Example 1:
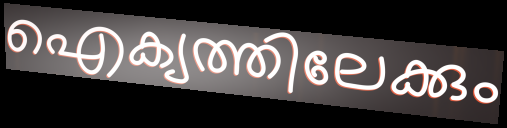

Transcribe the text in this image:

ഐക്യത്തിലേക്കും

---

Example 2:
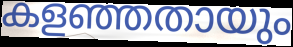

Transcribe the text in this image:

കളഞ്ഞതായും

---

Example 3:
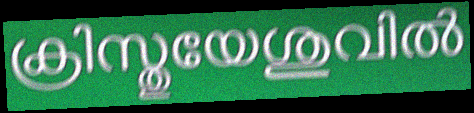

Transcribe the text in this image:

ക്രിസ്തുയേശുവിൽ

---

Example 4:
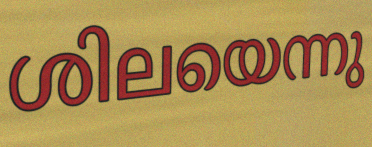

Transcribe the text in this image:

ശിലയെന്നു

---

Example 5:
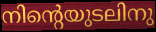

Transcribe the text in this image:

നിന്റെയുടലിനു